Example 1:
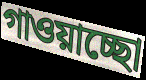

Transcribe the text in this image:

গাওয়াচ্ছো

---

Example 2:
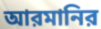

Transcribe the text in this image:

আরমানির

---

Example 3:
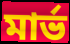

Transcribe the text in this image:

মার্ভ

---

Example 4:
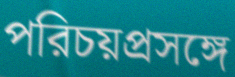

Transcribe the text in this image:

পরিচয়প্রসঙ্গে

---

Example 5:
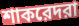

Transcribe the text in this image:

শাকরেদরা